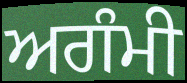
ਅਗੰਮੀ